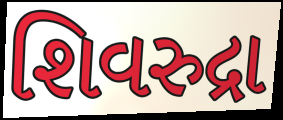
શિવરુદ્રા